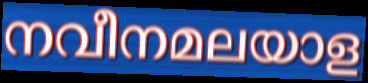
നവീനമലയാള